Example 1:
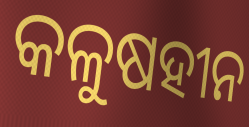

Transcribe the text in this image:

କଳୁଷହୀନ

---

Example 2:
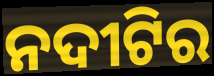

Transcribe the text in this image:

ନଦୀଟିର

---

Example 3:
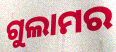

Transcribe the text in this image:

ଗୁଲାମର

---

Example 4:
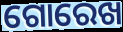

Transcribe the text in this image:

ଗୋରେଖ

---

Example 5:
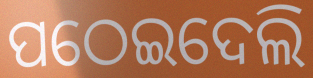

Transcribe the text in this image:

ପଠେଇଦେଲି